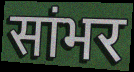
सांभर